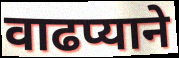
वाढप्याने